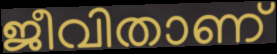
ജീവിതാണ്